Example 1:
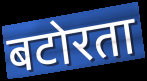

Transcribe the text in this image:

बटोरता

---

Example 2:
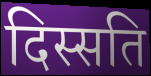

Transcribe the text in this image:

दिस्सति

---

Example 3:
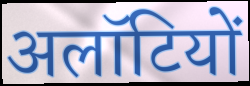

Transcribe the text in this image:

अलॉटियों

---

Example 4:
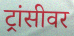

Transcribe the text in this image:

ट्रांसीवर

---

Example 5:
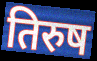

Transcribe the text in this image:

तिरुष